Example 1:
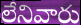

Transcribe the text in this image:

లేనివారు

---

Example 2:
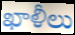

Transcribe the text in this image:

ఖాళీలు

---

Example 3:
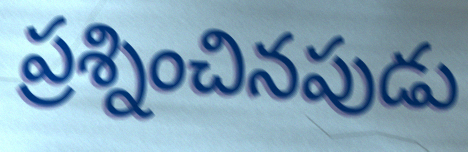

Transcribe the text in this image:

ప్రశ్నించినపుడు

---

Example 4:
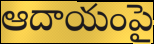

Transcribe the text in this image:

ఆదాయంపై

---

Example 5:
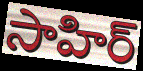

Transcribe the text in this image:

సాహిర్